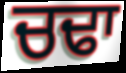
ਚਢਾ